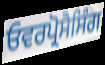
ਓਵਰਪ੍ਰੋਸੈਸਿੰਗ